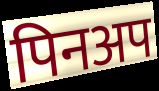
पिनअप